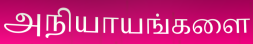
அநியாயங்களை